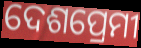
ଦେଶପ୍ରେମୀ